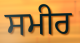
ਸਮੀਰ